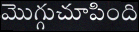
మొగ్గుచూపింది